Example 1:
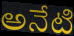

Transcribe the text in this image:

అనేటి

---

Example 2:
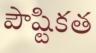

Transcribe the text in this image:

పౌష్టికత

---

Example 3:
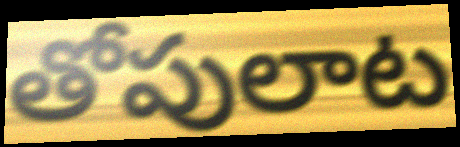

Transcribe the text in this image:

తోపులాట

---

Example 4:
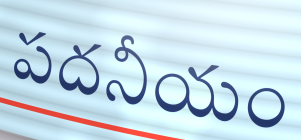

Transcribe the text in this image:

పదనీయం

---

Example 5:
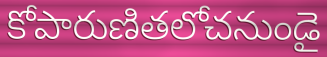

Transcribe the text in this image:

కోపారుణితలోచనుండై